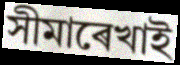
সীমাৰেখাই